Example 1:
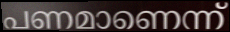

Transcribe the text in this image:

പണമാണെന്ന്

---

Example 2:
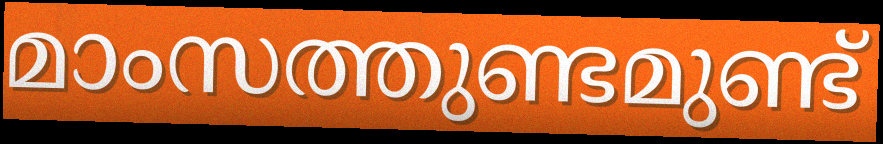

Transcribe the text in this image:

മാംസത്തുണ്ടമുണ്ട്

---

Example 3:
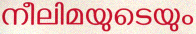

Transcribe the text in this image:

നീലിമയുടെയും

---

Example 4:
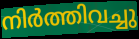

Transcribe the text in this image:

നിർത്തിവച്ചു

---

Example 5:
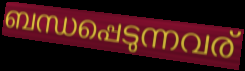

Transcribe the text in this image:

ബന്ധപ്പെടുന്നവര്